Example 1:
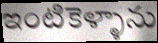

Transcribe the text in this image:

ఇంటికెళ్ళాను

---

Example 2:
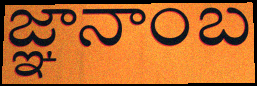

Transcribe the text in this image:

జ్ఞానాంబ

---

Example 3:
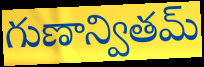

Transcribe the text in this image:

గుణాన్వితమ్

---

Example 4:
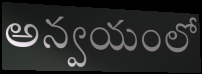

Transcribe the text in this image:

అన్వయంలో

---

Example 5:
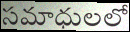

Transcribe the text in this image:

సమాధులలో